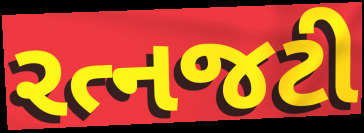
રત્નજટી